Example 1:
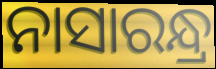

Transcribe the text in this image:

ନାସାରନ୍ଧ୍ର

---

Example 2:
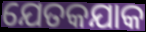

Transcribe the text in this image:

ଯେତକଯାକ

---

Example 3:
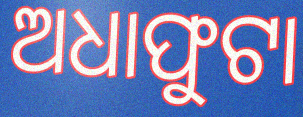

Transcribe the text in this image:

ଅଧାଫୁଟା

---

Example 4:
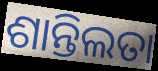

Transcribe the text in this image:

ଶାନ୍ତିଲତା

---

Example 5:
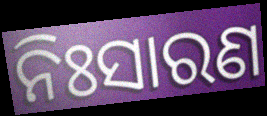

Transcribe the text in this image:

ନିଃସାରଣ